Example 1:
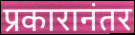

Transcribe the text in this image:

प्रकारानंतर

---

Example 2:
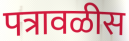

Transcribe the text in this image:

पत्रावळीस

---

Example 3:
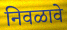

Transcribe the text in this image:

निवळावे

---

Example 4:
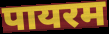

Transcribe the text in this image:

पायरम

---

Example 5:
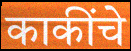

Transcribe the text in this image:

काकींचे